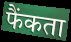
फैंकता